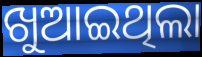
ଖୁଆଇଥିଲା